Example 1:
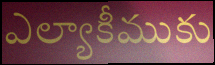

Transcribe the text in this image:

ఎల్యాకీముకు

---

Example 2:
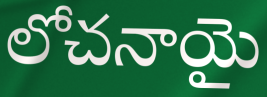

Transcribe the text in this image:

లోచనాయై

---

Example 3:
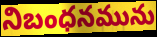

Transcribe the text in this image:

నిబంధనమును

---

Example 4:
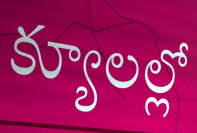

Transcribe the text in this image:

క్యూలల్లో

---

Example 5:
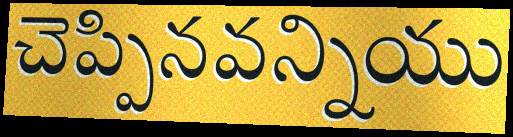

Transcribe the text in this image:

చెప్పినవన్నియు